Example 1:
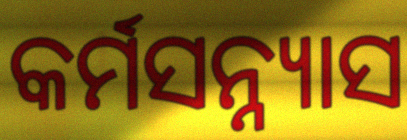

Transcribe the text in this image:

କର୍ମସନ୍ନ୍ୟାସ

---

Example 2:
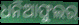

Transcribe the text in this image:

ଧନିଆଫୁଲର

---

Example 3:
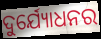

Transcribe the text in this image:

ଦୁର୍ଯ୍ୟୋଧନର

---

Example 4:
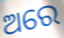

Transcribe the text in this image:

ଅରେ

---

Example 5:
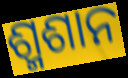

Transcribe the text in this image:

ଶ୍ମଶାନ